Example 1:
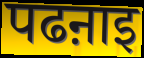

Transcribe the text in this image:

पढऩाइ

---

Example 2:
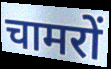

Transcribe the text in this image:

चामरों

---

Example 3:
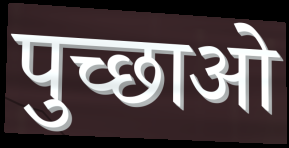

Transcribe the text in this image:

पुच्छाओ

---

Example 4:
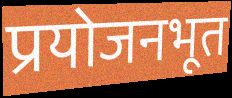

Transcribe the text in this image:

प्रयोजनभूत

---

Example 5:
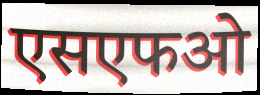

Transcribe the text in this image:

एसएफओ